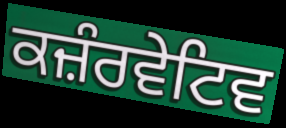
ਕਜ਼ੰਰਵੇਟਿਵ